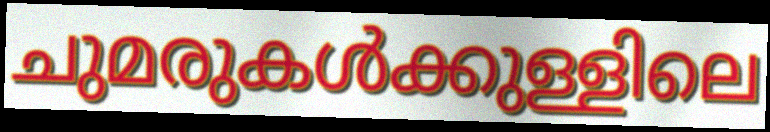
ചുമരുകൾക്കുള്ളിലെ